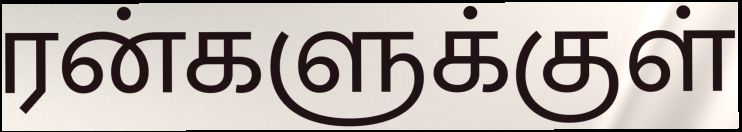
ரன்களுக்குள்